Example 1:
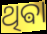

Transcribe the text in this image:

ଥିଵା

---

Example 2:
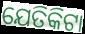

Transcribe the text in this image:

ଯେତିକିଟା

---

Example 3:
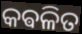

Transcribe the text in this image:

କଵଳିତ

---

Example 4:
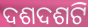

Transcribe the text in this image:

ଦଶଦଶଟି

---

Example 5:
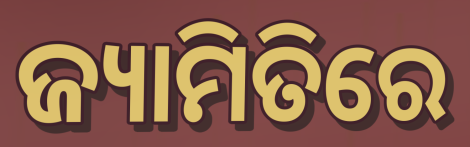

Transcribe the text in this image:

ଜ୍ୟାମିତିରେ